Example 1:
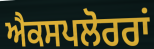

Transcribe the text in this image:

ਐਕਸਪਲੋਰਰਾਂ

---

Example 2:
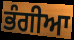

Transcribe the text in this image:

ਭੰਗੀਆ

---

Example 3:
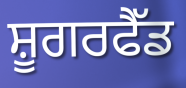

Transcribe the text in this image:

ਸ਼ੂਗਰਫੈੱਡ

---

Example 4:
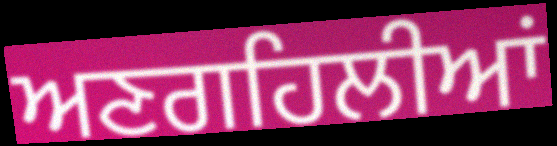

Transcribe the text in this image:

ਅਣਗਹਿਲੀਆਂ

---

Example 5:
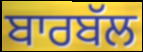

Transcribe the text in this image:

ਬਾਰਬੱਲ